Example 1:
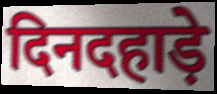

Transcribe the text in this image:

दिनदहाड़े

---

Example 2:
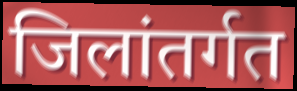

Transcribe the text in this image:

जिलांतर्गत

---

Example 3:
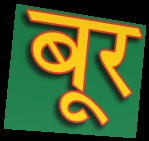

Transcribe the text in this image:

बूर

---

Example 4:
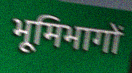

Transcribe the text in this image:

भूमिभागों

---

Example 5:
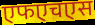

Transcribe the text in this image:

एफएचएस